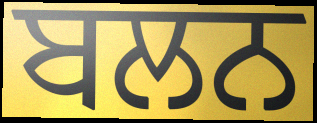
ਬਲਨ